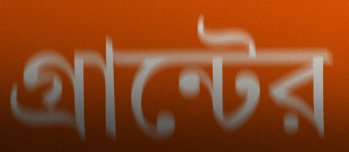
গ্রান্টের